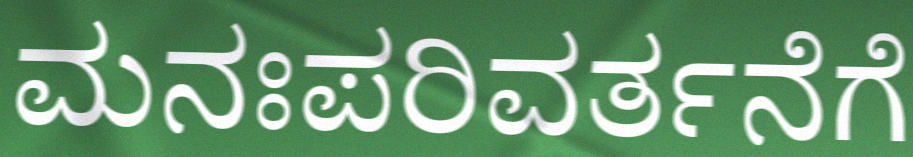
ಮನಃಪರಿವರ್ತನೆಗೆ